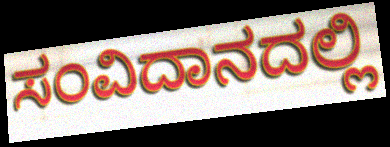
ಸಂವಿದಾನದಲ್ಲಿ